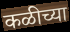
कळीच्या